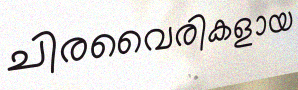
ചിരവൈരികളായ